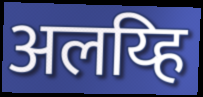
अलय्हि